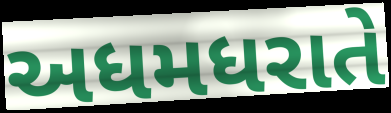
અધમધરાતે